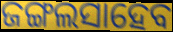
ଜଙ୍ଗଲସାହେବ